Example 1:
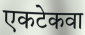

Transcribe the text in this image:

एकटेकवा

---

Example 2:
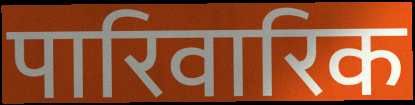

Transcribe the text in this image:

पारिवारिक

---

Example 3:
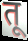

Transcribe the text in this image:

तू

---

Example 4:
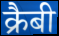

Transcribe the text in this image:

क्रैबी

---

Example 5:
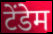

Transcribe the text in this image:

टेंडेम